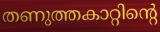
തണുത്തകാറ്റിന്റെ